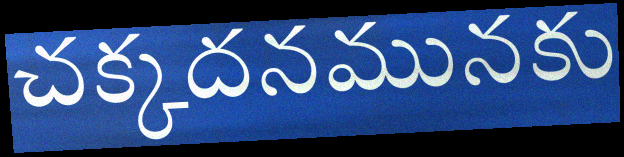
చక్కదనమునకు